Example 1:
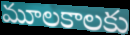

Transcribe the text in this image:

మూలకాలకు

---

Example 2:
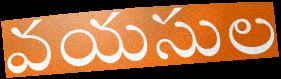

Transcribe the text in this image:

వయసుల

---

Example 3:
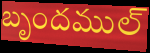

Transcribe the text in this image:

బృందముల్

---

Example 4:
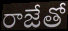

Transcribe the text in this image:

రాజేతో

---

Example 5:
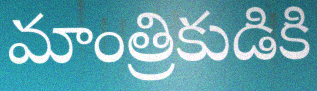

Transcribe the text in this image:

మాంత్రికుడికి